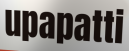
upapatti